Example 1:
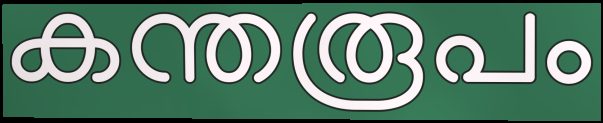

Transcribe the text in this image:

കന്തരൂപം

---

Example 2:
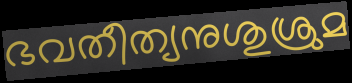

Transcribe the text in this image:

ഭവതീത്യനുശുശ്രുമ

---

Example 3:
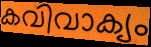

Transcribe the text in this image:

കവിവാക്യം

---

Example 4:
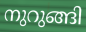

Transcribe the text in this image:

നുറുങ്ങി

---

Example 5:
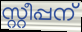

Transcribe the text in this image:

സ്റ്റീപ്പന്